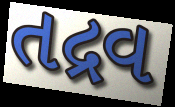
તદ્રવ